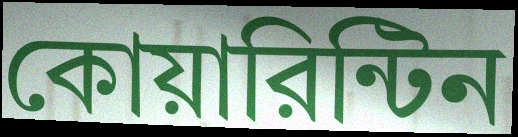
কোয়ারিন্টিন